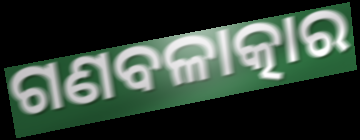
ଗଣବଳାତ୍କାର